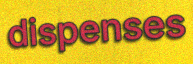
dispenses